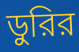
ডুরির